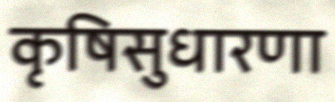
कृषिसुधारणा